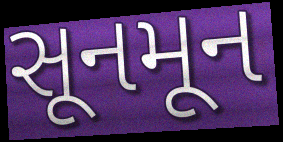
સૂનમૂન